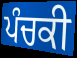
ਪੰਚਕੀ